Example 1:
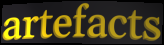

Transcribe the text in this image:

artefacts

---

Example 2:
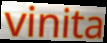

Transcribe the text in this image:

vinita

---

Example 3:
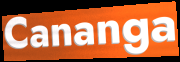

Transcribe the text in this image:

Cananga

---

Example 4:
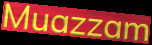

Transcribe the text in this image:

Muazzam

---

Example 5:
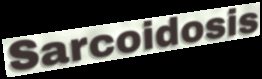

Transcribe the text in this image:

Sarcoidosis